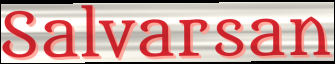
Salvarsan